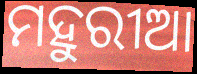
ମହୁରୀଆ